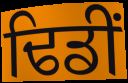
ਢਿਡੀਂ